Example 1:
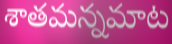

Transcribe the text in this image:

శాతమన్నమాట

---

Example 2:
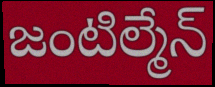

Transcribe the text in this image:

జంటిల్మేన్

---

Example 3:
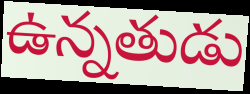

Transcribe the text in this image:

ఉన్నతుడు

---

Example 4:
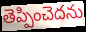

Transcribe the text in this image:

తెప్పించెదను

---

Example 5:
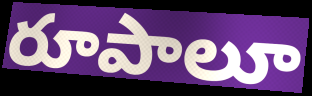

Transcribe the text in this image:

రూపాలూ